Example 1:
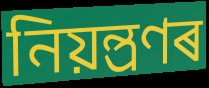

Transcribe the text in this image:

নিয়ন্ত্ৰণৰ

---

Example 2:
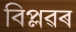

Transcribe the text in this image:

বিপ্লৱৰ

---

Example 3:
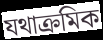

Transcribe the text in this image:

যথাক্ৰমিক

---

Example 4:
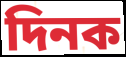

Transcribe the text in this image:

দিনক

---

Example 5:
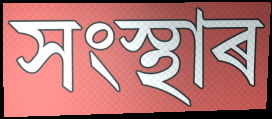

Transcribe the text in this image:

সংস্থাৰ